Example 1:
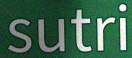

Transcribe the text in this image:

sutri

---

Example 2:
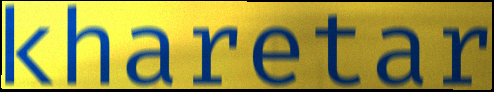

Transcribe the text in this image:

kharetar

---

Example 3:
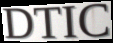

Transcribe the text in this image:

DTIC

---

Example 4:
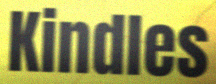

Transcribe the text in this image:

Kindles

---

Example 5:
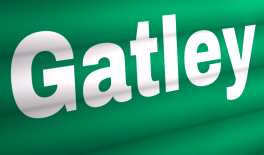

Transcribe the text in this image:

Gatley